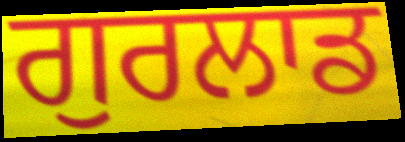
ਗੁਰਲਾਡ